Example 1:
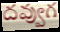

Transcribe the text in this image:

దవ్వుగ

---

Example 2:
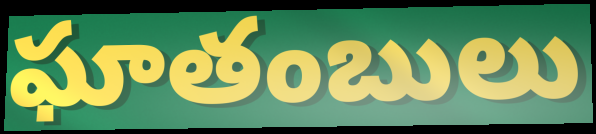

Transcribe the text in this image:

ఘాతంబులు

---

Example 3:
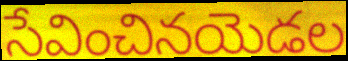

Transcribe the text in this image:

సేవించినయెడల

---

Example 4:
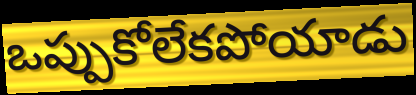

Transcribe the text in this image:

ఒప్పుకోలేకపోయాడు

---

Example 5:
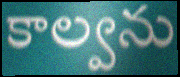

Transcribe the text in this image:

కాల్వను